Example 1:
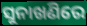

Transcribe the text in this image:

ସୁନାଖଣିରେ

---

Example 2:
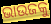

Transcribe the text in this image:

ଭାଉଜକୁ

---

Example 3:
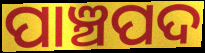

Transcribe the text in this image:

ପାଞ୍ଚପଦ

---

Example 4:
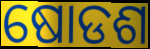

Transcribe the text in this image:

ଷୋଡଶ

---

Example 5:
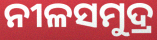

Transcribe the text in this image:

ନୀଳସମୁଦ୍ର